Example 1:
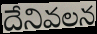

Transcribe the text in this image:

దేనివలన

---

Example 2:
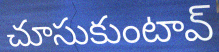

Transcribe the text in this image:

చూసుకుంటావ్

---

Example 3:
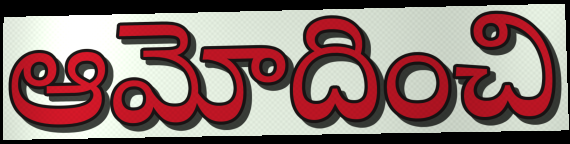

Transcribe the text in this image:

ఆమోదించి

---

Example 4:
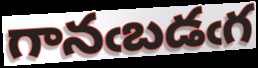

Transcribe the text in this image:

గానఁబడఁగ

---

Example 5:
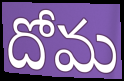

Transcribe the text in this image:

దోమ